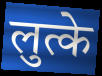
लुत्के